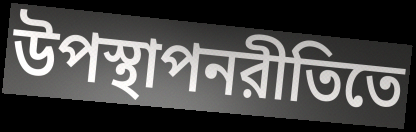
উপস্থাপনরীতিতে